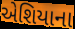
એશિયાના